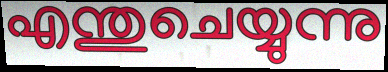
എന്തുചെയ്യുന്നു